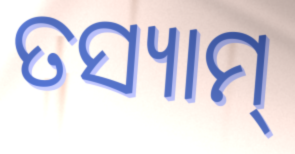
ତସ୍ୟାମ୍